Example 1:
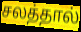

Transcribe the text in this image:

சலத்தால்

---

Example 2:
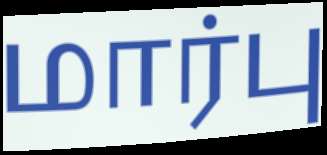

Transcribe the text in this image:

மார்பு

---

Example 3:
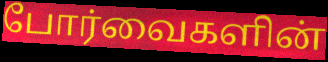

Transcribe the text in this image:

போர்வைகளின்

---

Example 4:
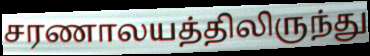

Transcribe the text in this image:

சரணாலயத்திலிருந்து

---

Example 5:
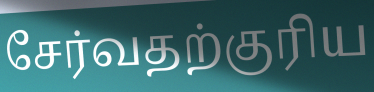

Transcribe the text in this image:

சேர்வதற்குரிய